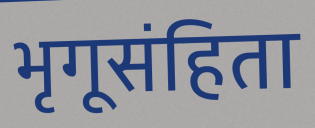
भृगूसंहिता